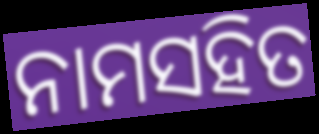
ନାମସହିତ